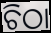
ଚିଠା